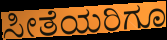
ಸೀತೆಯರಿಗೂ